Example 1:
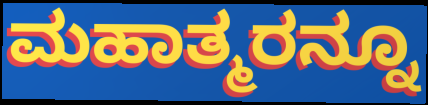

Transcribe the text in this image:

ಮಹಾತ್ಮರನ್ನೂ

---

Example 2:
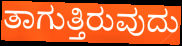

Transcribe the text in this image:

ತಾಗುತ್ತಿರುವುದು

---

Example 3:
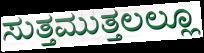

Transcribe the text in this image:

ಸುತ್ತಮುತ್ತಲಲ್ಲೂ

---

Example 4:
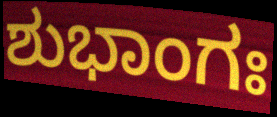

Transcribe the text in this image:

ಶುಭಾಂಗಃ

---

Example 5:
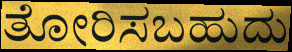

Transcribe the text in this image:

ತೋರಿಸಬಹುದು